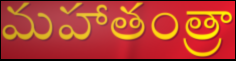
మహాతంత్రా